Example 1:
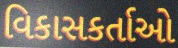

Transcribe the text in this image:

વિકાસકર્તાઓ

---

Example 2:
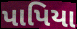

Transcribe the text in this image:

પાપિયા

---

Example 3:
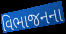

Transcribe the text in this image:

વિભાજનના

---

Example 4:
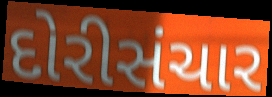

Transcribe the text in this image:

દોરીસંચાર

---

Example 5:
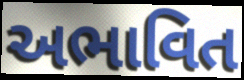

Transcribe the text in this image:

અભાવિત